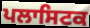
ਪਲਾਸਿਟਕ